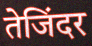
तेजिंदर